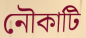
নৌকাটি